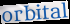
orbital